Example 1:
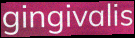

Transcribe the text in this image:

gingivalis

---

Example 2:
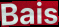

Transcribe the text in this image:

Bais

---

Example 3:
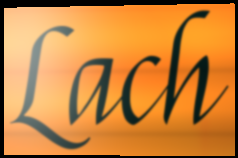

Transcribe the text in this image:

Lach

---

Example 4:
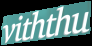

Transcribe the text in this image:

viththu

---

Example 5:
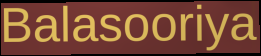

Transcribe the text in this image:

Balasooriya